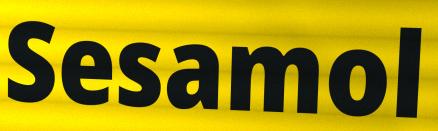
Sesamol